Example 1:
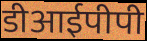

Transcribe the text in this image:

डीआईपीपी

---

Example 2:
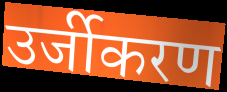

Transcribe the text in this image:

उर्जीकरण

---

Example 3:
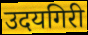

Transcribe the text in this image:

उदयगिरी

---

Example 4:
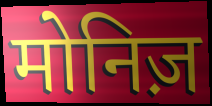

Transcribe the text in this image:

मोनिज़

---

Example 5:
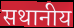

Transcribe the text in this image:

सथानीय